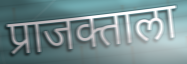
प्राजक्ताला